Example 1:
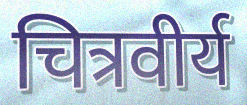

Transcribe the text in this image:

चित्रवीर्य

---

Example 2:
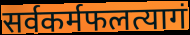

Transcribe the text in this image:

सर्वकर्मफलत्यागं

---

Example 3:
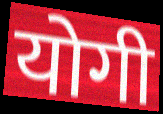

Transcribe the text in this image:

योगी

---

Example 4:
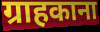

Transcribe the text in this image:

ग्राहकाना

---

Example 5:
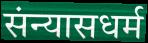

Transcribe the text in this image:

संन्यासधर्म